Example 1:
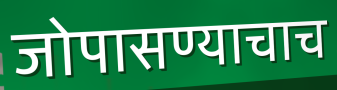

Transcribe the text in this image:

जोपासण्याचाच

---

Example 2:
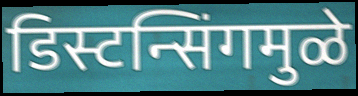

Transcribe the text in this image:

डिस्टन्सिंगमुळे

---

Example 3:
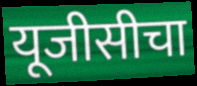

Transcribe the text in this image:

यूजीसीचा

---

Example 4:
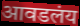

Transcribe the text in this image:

आवडलंय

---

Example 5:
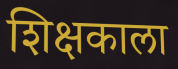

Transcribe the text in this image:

शिक्षकाला